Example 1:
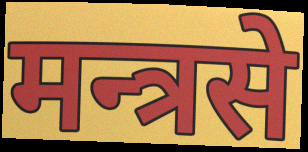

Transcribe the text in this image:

मन्त्रसे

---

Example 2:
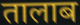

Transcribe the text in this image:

तालाब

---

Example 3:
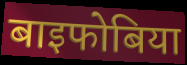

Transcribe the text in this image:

बाइफोबिया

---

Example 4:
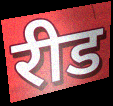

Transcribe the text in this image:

रीड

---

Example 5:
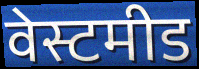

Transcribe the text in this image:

वेस्टमीड